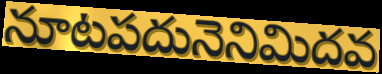
నూటపదునెనిమిదవ